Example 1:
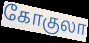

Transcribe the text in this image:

கோகுலா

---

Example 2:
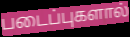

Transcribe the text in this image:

படைப்புகளால்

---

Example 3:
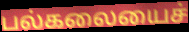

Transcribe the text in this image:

பல்கலையைச்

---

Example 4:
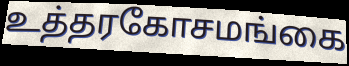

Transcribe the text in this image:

உத்தரகோசமங்கை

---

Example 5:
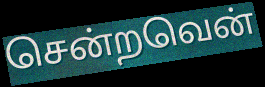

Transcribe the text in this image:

சென்றவென்